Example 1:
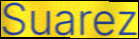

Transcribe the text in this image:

Suarez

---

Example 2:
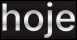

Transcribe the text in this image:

hoje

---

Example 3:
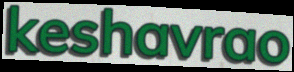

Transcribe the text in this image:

keshavrao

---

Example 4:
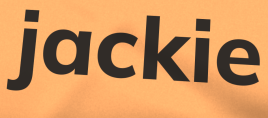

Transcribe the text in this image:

jackie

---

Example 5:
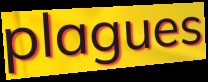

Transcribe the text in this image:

plagues